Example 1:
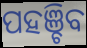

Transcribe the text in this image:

ପହଞ୍ଚିବ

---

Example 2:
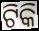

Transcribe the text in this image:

ଟିକି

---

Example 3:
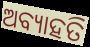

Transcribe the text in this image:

ଅବ୍ୟାହତି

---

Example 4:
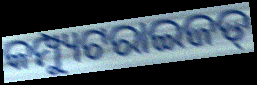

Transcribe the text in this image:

କମ୍ପ୍ୟୁଟରାଇଜଡ୍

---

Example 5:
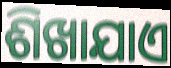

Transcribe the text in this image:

ଶିଖାଯାଏ